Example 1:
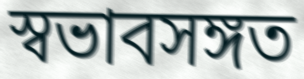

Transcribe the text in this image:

স্বভাবসঙ্গত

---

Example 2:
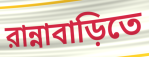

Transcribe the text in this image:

রান্নাবাড়িতে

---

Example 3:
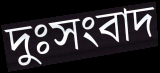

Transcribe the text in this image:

দুঃসংবাদ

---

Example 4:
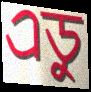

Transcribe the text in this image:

এডু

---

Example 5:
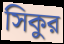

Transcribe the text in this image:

সিকুর